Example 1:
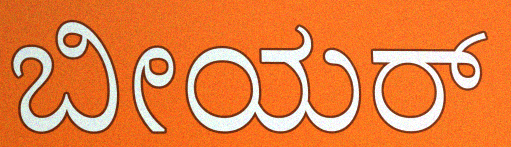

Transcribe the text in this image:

ಬೀಯರ್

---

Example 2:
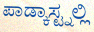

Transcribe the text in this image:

ಪಾಡ್ಕಾಸ್ಟ್ನಲ್ಲಿ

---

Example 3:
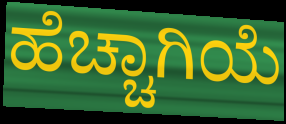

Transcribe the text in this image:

ಹೆಚ್ಚಾಗಿಯೆ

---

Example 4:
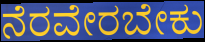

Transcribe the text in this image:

ನೆರವೇರಬೇಕು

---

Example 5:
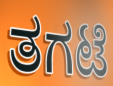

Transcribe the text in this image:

ತಗಟೆ